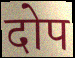
दोप